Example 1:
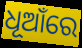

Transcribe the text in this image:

ଧୂଆଁରେ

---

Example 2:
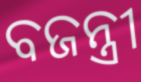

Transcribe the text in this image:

ବଜନ୍ତ୍ରୀ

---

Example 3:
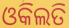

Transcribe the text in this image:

ଓକିଲତି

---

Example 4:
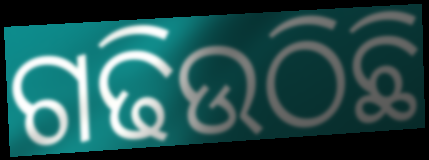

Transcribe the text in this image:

ଗଢିଉଠିଛି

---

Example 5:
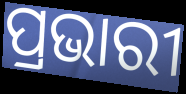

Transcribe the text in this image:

ପ୍ରଭାରୀ